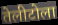
तेलीटोला